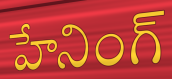
హేనింగ్